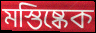
মস্তিষ্কেক